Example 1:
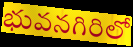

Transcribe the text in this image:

భువనగిరిలో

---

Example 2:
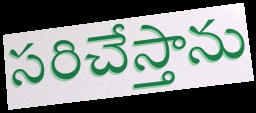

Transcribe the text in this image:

సరిచేస్తాను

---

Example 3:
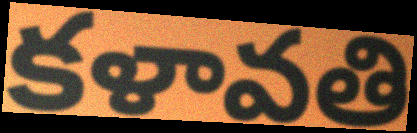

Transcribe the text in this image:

కళావతి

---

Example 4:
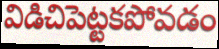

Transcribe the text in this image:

విడిచిపెట్టకపోవడం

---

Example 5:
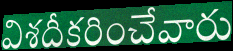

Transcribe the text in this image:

విశదీకరించేవారు